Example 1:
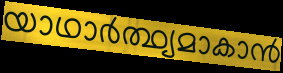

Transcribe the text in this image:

യാഥാർത്ഥ്യമാകാൻ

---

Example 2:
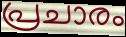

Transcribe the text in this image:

പ്രചാരം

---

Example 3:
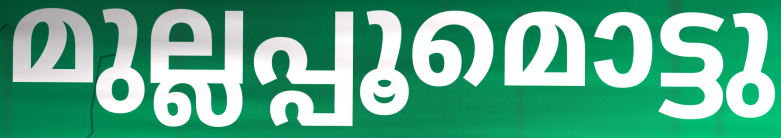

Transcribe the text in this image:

മുല്ലപ്പൂമൊട്ടു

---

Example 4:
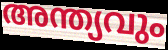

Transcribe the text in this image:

അന്ത്യവും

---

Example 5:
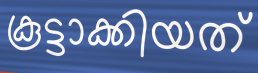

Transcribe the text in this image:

കൂട്ടാക്കിയത്